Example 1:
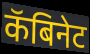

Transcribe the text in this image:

कॅबिनेट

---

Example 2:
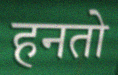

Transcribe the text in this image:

हनतो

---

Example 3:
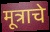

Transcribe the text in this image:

मूत्राचे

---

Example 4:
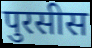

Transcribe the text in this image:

पुरसीस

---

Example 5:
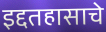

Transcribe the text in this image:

इद्दतहासाचे